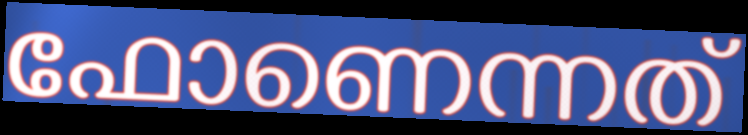
ഫോണെന്നത്